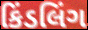
કિંડલિંગ